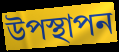
উপস্থাপন